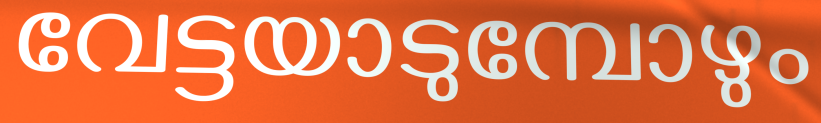
വേട്ടയാടുമ്പോഴും